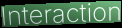
Interaction